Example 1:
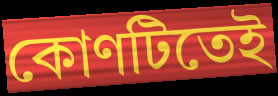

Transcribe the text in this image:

কোণটিতেই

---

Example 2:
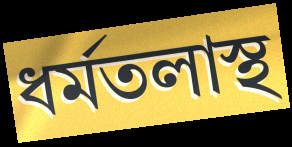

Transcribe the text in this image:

ধর্মতলাস্থ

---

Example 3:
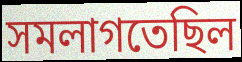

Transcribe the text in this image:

সমলাগতেছিল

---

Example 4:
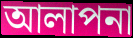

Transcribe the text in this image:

আলাপনা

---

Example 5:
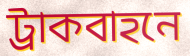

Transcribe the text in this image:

ট্রাকবাহনে